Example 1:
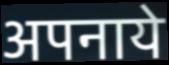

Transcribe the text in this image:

अपनाये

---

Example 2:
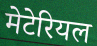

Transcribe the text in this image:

मेटेरियल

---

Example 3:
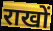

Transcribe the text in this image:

राखों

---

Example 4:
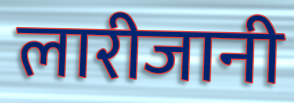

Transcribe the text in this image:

लारीजानी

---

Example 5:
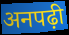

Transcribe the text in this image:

अनपढ़ी